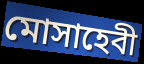
মোসাহেবী